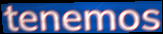
tenemos